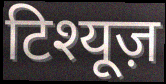
टिश्यूज़